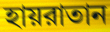
হায়রাতান